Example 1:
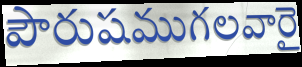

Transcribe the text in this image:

పౌరుషముగలవారై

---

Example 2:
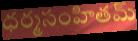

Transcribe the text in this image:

ధర్మసంహితమ్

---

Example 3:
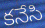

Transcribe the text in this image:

కనేసి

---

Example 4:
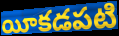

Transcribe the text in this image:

యీకడపటి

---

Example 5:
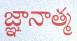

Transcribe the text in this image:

జ్ఞానాత్మ